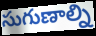
సుగుణాల్ని